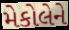
મેકોલેને